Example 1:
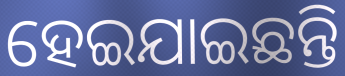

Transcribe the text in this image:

ହେଇଯାଇଛନ୍ତି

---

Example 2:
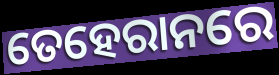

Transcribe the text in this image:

ତେହେରାନରେ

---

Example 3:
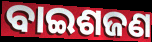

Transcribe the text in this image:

ବାଇଶଜଣ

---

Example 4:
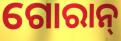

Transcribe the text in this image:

ଗୋରାନ୍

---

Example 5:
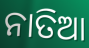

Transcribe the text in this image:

ନାତିଆ